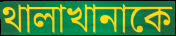
থালাখানাকে